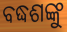
ବଦ୍ଧଶଙ୍କୁ